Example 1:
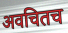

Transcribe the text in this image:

अवचितच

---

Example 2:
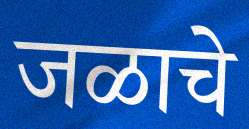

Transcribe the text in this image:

जळाचे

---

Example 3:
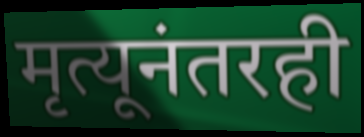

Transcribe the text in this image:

मृत्यूनंतरही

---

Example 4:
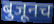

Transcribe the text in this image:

बुजूनच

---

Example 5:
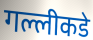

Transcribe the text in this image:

गल्लीकडे